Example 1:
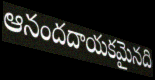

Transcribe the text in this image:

ఆనందదాయకమైనది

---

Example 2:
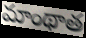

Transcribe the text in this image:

మాంథాత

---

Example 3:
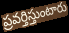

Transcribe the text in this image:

ప్రవర్తిస్తుంటారు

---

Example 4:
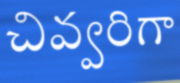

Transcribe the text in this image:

చివ్వరిగా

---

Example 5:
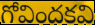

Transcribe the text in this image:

గోవిందకవి